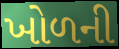
ખોળની